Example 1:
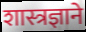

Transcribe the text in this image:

शास्त्रज्ञाने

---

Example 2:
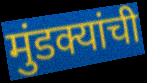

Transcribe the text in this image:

मुंडक्यांची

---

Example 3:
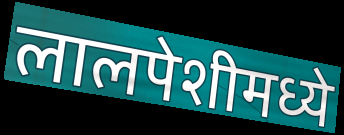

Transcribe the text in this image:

लालपेशीमध्ये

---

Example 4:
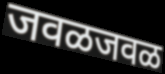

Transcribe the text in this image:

जवळजवळ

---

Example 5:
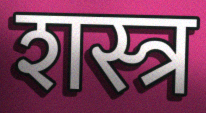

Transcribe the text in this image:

शस्त्र